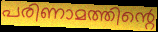
പരിണാമത്തിന്റെ